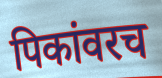
पिकांवरच